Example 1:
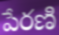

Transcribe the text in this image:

పేరణి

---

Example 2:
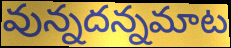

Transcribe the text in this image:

వున్నదన్నమాట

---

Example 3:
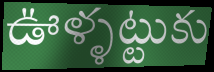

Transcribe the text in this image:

ఊళ్ళట్టుకు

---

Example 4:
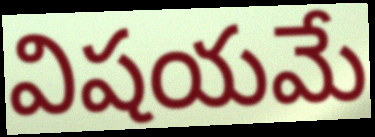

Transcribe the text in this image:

విషయమే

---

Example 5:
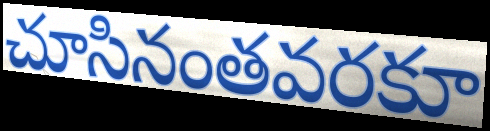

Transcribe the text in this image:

చూసినంతవరకూ